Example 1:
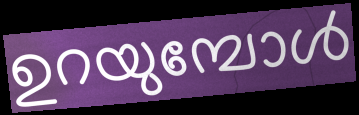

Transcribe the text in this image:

ഉറയുമ്പോൾ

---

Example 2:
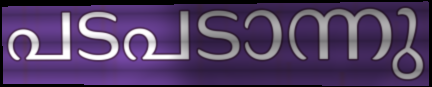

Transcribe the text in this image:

പടപടാന്നു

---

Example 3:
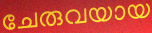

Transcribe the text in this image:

ചേരുവയായ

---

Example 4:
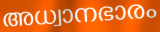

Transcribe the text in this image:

അധ്വാനഭാരം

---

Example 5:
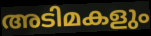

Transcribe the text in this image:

അടിമകളും